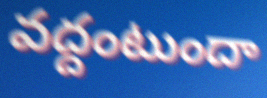
వద్దంటుందా